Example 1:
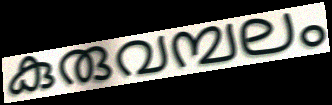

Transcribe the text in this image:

കുരുവമ്പലം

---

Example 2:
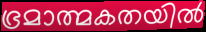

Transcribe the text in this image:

ഭ്രമാത്മകതയിൽ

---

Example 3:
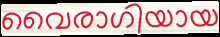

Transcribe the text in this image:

വൈരാഗിയായ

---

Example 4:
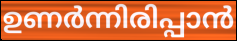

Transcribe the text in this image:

ഉണർന്നിരിപ്പാൻ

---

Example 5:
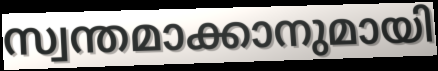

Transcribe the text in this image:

സ്വന്തമാക്കാനുമായി